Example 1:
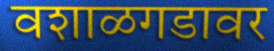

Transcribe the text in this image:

वशाळगडावर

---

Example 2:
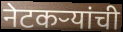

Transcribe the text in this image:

नेटकऱ्यांची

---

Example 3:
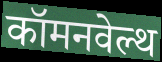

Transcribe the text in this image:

कॉमनवेल्थ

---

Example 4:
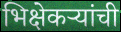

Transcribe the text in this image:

भिक्षेकऱ्यांची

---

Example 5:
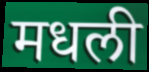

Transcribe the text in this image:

मधली